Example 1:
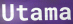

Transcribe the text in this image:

Utama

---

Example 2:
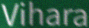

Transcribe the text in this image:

Vihara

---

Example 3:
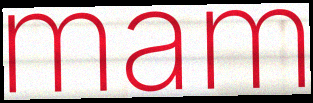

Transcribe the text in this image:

mam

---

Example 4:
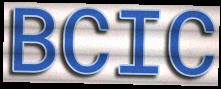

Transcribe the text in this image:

BCIC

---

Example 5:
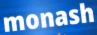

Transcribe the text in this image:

monash